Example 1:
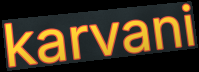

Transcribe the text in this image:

karvani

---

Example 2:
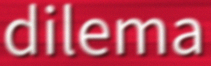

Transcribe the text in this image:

dilema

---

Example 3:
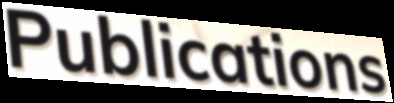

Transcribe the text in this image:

Publications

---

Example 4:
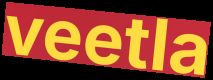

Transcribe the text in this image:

veetla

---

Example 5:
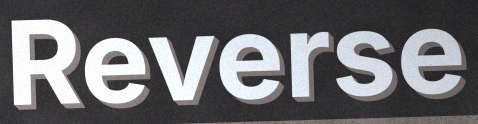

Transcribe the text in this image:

Reverse